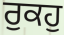
ਰੁਕਹੁ